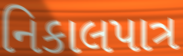
નિકાલપાત્ર